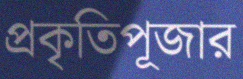
প্রকৃতিপূজার